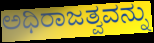
ಅಧಿರಾಜತ್ವವನ್ನು